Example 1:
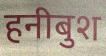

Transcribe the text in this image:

हनीबुश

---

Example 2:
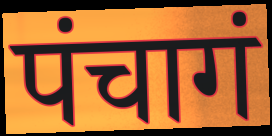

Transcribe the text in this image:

पंचागं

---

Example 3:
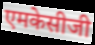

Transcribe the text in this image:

एमकेसीजी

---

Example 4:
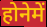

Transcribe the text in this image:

होनेमें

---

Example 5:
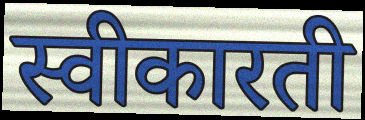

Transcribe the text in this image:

स्वीकारती